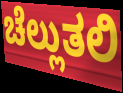
ಚೆಲ್ಲುತಲಿ